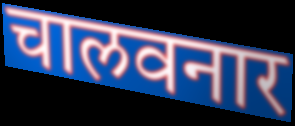
चालवनार